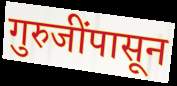
गुरुजींपासून